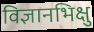
विज्ञानभिक्षु